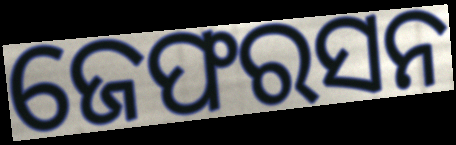
ଜେଫରସନ